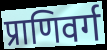
प्राणिवर्ग